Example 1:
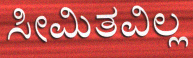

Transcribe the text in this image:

ಸೀಮಿತವಿಲ್ಲ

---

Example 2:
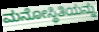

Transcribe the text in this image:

ಮನೋಸ್ಥಿತಿಯನ್ನು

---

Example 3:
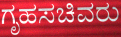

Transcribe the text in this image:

ಗೃಹಸಚಿವರು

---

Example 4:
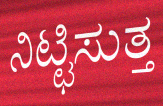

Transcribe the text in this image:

ನಿಟ್ಟಿಸುತ್ತ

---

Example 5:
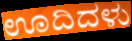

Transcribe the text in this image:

ಊದಿದಳು